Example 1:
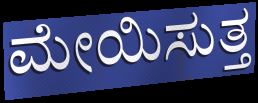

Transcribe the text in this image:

ಮೇಯಿಸುತ್ತ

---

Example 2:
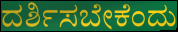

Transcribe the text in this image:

ದರ್ಶಿಸಬೇಕೆಂದು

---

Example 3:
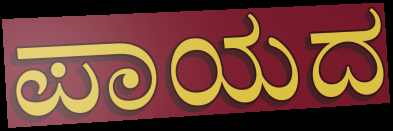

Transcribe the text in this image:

ಪಾಯದ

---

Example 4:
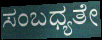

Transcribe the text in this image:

ಸಂಬಧ್ಯತೇ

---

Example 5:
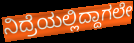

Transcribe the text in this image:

ನಿದ್ರೆಯಲ್ಲಿದ್ದಾಗಲೇ